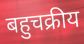
बहुचक्रीय